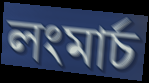
লংমার্চ